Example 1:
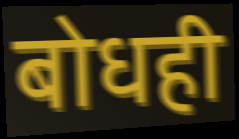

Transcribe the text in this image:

बोधही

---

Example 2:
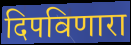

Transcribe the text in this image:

दिपविणारा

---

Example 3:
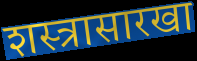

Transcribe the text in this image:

शस्त्रासारखा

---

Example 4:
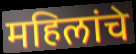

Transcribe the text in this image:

महिलांचे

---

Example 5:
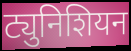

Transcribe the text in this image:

ट्युनिशियन